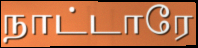
நாட்டாரே